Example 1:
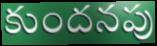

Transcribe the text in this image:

కుందనపు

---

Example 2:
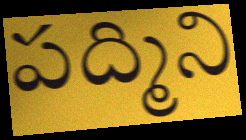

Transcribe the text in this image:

పద్మిని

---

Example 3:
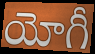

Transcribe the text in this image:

యోగీ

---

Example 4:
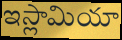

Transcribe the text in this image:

ఇస్లామియా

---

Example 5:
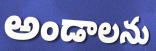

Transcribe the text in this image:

అండాలను